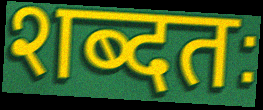
शब्दतः